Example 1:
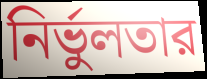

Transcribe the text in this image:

নির্ভুলতার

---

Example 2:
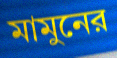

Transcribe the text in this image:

মামুনের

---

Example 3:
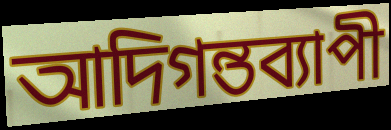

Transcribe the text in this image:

আদিগন্তব্যাপী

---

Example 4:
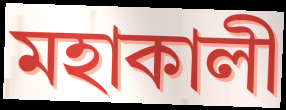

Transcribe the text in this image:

মহাকালী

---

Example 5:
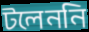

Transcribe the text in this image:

টলেননি